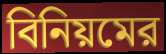
বিনিয়মের